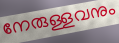
നേരുള്ളവനും